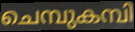
ചെമ്പുകമ്പി